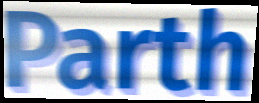
Parth